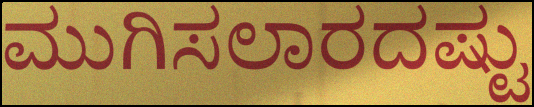
ಮುಗಿಸಲಾರದಷ್ಟು